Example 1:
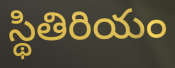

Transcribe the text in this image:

స్థితిరియం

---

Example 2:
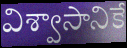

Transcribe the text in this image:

విశ్వాసానికే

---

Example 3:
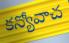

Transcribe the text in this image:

కన్యోవాచ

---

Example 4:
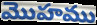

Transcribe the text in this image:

మొహము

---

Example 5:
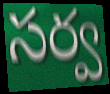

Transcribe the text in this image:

సర్వ